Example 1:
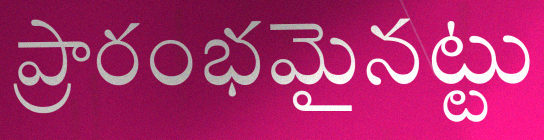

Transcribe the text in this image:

ప్రారంభమైనట్టు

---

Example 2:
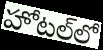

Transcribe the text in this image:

హోటల్‌లో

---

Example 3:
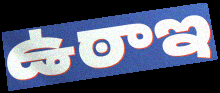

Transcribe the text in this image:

ఉఠాఇ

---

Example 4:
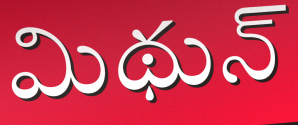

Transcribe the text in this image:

మిథున్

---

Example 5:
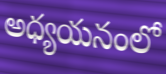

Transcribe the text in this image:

అధ్యయనంలో